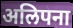
अलिपना